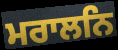
ਮਰਾਲਨਿ